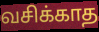
வசிக்காத